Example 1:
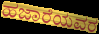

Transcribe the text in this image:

ಹಜಾರೆಯವರ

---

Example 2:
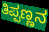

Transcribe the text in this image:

ತಿಪ್ಪಣ್ಣನ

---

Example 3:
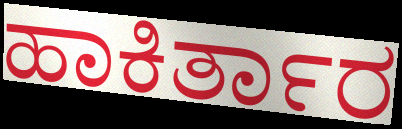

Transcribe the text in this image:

ಹಾಕಿರ್ತಾರ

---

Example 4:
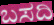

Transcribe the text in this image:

ಬಸದಿ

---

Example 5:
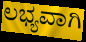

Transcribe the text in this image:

ಲಭ್ಯವಾಗಿ